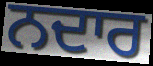
ਨਦਾਰ